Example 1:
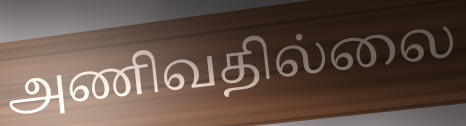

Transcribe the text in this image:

அணிவதில்லை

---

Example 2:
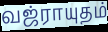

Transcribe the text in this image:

வஜ்ராயுதம்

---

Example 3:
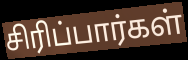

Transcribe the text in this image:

சிரிப்பார்கள்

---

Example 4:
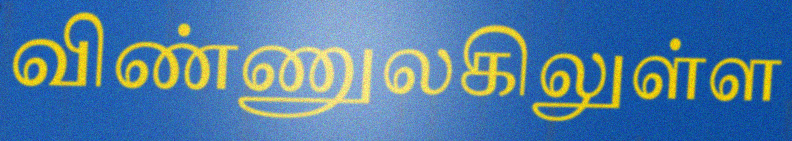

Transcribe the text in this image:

விண்ணுலகிலுள்ள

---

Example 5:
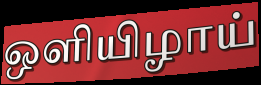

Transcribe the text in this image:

ஒளியிழாய்